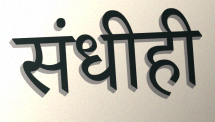
संधीही